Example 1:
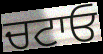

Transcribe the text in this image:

ਚਟਾਓ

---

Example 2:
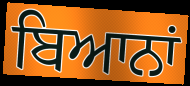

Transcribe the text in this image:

ਬਿਆਨਾਂ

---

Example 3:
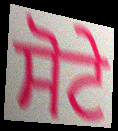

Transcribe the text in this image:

ਸੋਟੇ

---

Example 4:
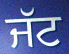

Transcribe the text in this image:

ਜੱਟ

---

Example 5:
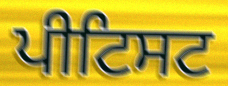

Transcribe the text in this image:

ਪੀਟਿਸਟ